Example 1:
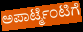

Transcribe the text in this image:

ಅಪಾರ್ಟ್ಮೆಂಟಿಗೆ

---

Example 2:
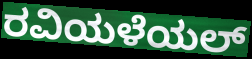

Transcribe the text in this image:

ರವಿಯಳೆಯಲ್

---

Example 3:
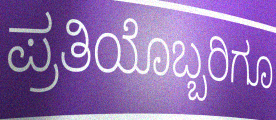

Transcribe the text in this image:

ಪ್ರತಿಯೊಬ್ಬರಿಗೂ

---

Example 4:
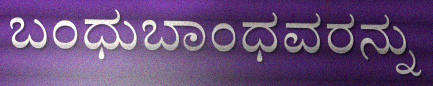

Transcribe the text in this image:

ಬಂಧುಬಾಂಧವರನ್ನು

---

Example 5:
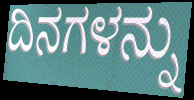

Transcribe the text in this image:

ದಿನಗಳನ್ನು